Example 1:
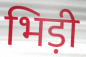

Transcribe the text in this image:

भिड़ी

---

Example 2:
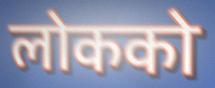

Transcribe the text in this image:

लोकको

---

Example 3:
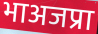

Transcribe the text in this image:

भाअजप्रा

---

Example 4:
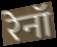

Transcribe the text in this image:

रेनॉ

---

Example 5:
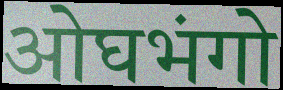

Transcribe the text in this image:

ओघभंगो